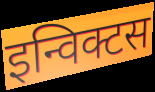
इन्विक्टस